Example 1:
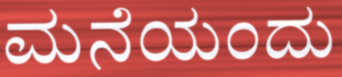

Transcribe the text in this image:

ಮನೆಯಂದು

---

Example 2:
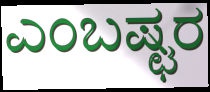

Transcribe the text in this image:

ಎಂಬಷ್ಟರ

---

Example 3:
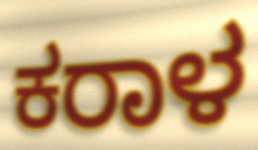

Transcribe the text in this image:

ಕರಾಳ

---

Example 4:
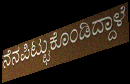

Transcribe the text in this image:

ನೆನಪಿಟ್ಟುಕೊಂಡಿದ್ದಾಳೆ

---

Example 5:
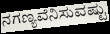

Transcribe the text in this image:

ನಗಣ್ಯವೆನಿಸುವಷ್ಟು